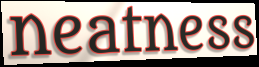
neatness